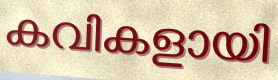
കവികളായി